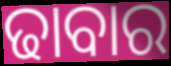
ଢାବାର